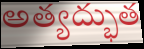
అత్యద్భుత